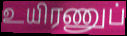
உயிரணுப்